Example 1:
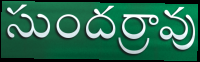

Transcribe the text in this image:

సుందర్రావు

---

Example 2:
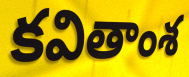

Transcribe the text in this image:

కవితాంశ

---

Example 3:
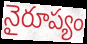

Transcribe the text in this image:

నైరూప్యం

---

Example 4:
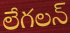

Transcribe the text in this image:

లేగలన్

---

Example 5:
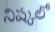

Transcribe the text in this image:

నిష్కలో